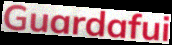
Guardafui